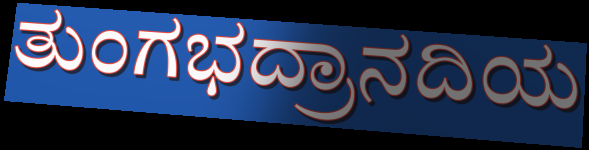
ತುಂಗಭದ್ರಾನದಿಯ